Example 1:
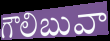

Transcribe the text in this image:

గౌలిబువా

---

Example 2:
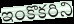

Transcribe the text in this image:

ఇంకొకరిని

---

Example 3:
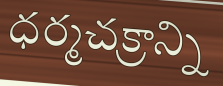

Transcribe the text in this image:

ధర్మచక్రాన్ని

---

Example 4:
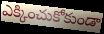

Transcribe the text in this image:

ఎక్కించుకోకుండా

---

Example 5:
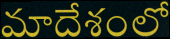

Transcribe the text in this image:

మాదేశంలో